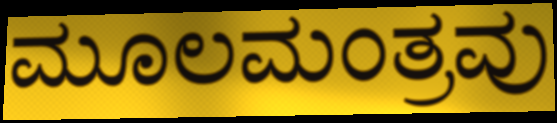
ಮೂಲಮಂತ್ರವು